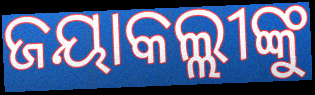
ଜୟାକଲ୍ଲୀଙ୍କୁ